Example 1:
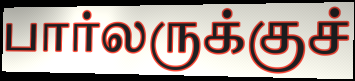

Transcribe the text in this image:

பார்லருக்குச்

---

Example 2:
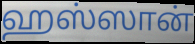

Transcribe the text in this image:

ஹஸ்ஸான்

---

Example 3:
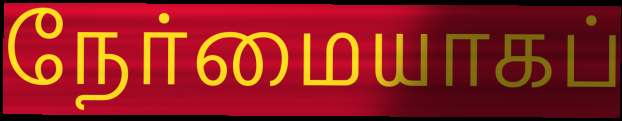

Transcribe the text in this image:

நேர்மையாகப்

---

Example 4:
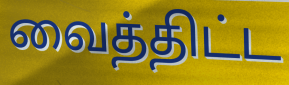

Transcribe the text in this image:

வைத்திட்ட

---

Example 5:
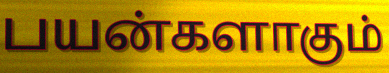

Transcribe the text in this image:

பயன்களாகும்